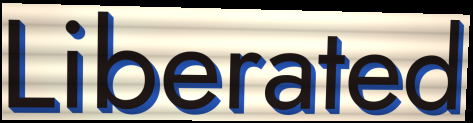
Liberated